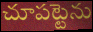
చూపట్టెను